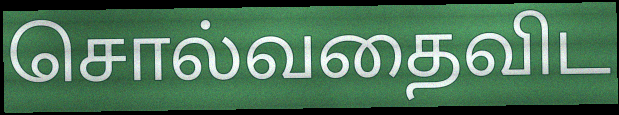
சொல்வதைவிட